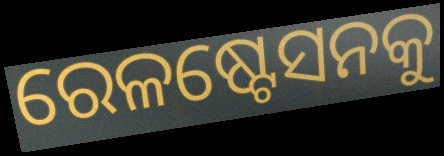
ରେଳଷ୍ଟେସନକୁ